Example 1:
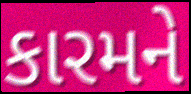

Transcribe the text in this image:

કારમને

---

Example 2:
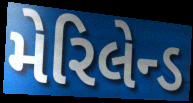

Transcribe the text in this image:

મેરિલેન્ડ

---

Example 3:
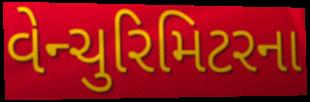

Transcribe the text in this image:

વેન્ચુરિમિટરના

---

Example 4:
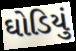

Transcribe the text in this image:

ઘોડિયું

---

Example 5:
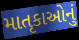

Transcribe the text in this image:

માતૃકાઓનું